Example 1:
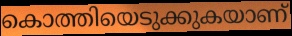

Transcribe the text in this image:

കൊത്തിയെടുക്കുകയാണ്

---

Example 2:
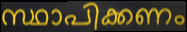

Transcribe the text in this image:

സ്ഥാപിക്കണം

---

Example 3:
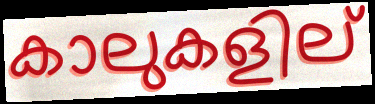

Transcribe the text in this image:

കാലുകളില്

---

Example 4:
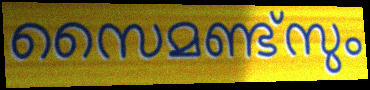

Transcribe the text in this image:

സൈമണ്ട്സും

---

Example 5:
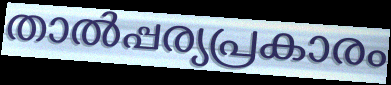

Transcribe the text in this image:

താൽപ്പര്യപ്രകാരം